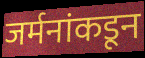
जर्मनांकडून